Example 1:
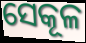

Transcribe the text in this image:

ସେକୂଳ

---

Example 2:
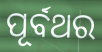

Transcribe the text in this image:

ପୂର୍ବଥର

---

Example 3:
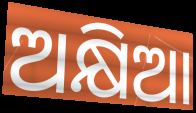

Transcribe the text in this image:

ଅକ୍ଷିଆ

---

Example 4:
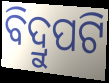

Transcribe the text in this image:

ବିଦ୍ରୁପଟି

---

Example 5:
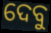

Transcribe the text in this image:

ଦେବୁ